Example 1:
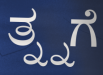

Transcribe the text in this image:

ತ್ನ್ನಗೆ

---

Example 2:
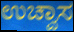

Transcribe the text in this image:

ಉಚ್ವಾಸ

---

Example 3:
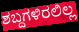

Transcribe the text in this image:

ಶಬ್ದಗಳಿರಲಿಲ್ಲ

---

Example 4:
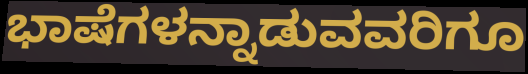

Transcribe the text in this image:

ಭಾಷೆಗಳನ್ನಾಡುವವರಿಗೂ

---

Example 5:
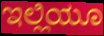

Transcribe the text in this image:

ಇಲ್ಲಿಯೂ